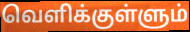
வெளிக்குள்ளும்